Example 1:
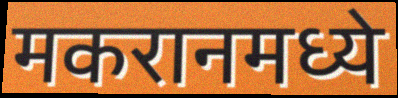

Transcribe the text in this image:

मकरानमध्ये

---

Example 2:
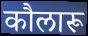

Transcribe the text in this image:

कौलारू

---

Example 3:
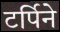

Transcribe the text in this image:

टर्पिने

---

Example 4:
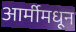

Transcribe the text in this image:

आर्मीमधून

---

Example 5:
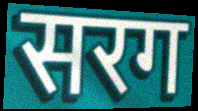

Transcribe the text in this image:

सरग